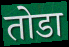
तोडा